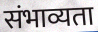
संभाव्यता